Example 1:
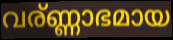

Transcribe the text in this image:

വര്ണ്ണാഭമായ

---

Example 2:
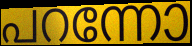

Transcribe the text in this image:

പറന്നോ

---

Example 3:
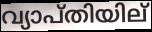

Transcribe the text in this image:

വ്യാപ്തിയില്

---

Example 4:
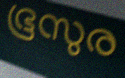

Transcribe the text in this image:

ഭൂസുര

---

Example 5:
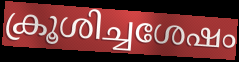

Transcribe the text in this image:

ക്രൂശിച്ചശേഷം